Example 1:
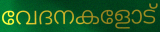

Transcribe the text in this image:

വേദനകളോട്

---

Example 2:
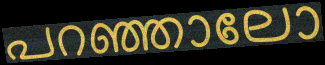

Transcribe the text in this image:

പറഞ്ഞാലോ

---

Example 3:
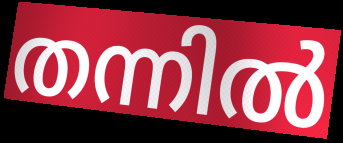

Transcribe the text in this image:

തന്നിൽ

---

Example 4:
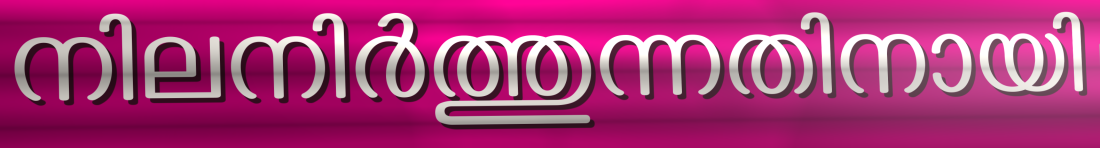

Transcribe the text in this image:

നിലനിർത്തുന്നതിനായി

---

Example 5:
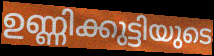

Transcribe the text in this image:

ഉണ്ണിക്കുട്ടിയുടെ